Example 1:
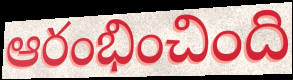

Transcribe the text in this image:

ఆరంభించింది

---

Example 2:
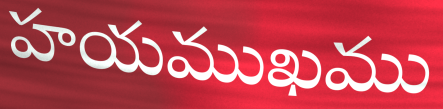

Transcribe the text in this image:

హయముఖము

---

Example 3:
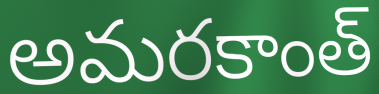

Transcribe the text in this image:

అమరకాంత్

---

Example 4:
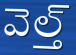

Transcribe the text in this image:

వెల్త్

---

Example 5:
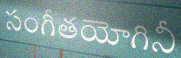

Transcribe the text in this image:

సంగీతయోగినీ